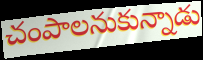
చంపాలనుకున్నాడు